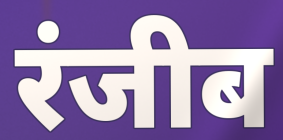
रंजीब